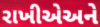
રાખીએઅને